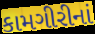
કામગીરીનાં